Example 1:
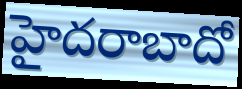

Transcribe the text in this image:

హైదరాబాదో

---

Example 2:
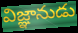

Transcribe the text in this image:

విజ్ఞానుడు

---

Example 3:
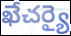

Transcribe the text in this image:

ఖేచర్యై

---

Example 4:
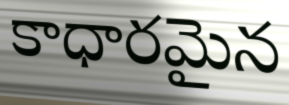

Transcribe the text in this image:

కాధారమైన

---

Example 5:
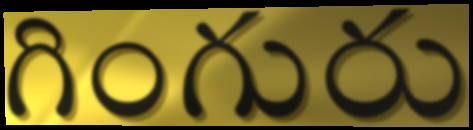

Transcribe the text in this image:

గింగురు